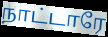
நாட்டாரே